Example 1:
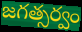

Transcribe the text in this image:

జగత్సర్వం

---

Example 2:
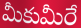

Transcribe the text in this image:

మీకుమీరే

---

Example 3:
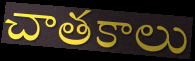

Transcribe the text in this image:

చాతకాలు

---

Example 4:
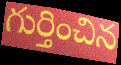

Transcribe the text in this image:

గుర్తించిన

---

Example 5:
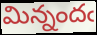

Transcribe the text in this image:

మిన్నందఁ